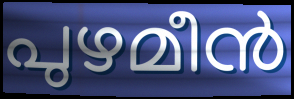
പുഴമീൻ